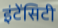
इंटेंसिटी